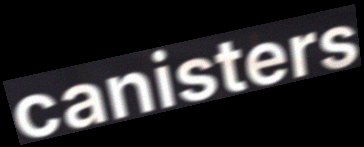
canisters